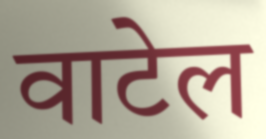
वाटेल